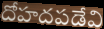
దోహదపడేవి